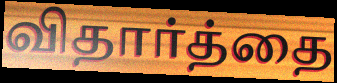
விதார்த்தை